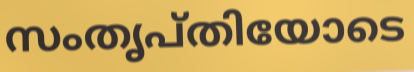
സംതൃപ്തിയോടെ